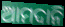
ଆମଦାନି